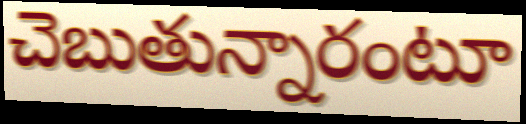
చెబుతున్నారంటూ